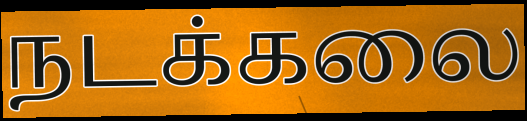
நடக்கலை